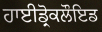
ਹਾਈਡ੍ਰੋਕਲੌਇਡ